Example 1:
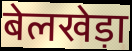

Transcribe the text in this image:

बेलखेड़ा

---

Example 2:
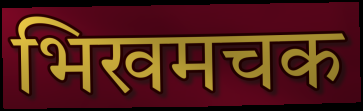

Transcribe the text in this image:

भिखमचक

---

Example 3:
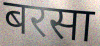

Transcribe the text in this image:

बरसा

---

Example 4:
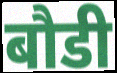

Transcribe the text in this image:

बौडी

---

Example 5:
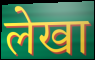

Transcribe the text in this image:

लेखा